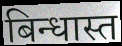
बिन्धास्त